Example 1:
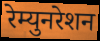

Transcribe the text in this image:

रेम्युनरेशन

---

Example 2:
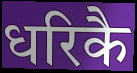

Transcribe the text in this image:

धरिकै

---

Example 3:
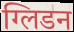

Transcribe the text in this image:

ग्लिडन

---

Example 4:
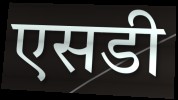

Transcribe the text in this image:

एसडी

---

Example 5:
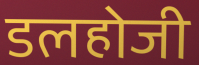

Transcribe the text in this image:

डलहोजी